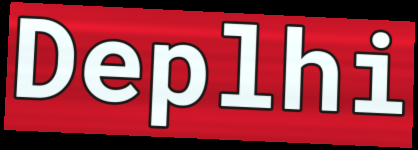
Deplhi